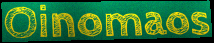
Oinomaos